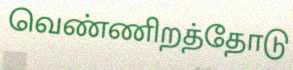
வெண்ணிறத்தோடு